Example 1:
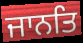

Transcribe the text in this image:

ਜਾਨਤਿ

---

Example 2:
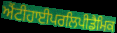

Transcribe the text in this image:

ਐਂਟੀਹਾਈਪਰਲਿਪੀਡੈਮਿਕ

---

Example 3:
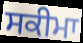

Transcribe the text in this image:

ਸਕੀਮਾ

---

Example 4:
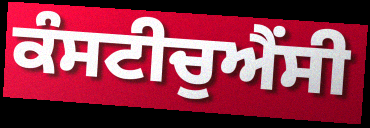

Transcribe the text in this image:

ਕੰਸਟੀਚੁਐਂਸੀ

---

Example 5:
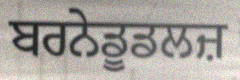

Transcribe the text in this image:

ਬਰਨੇਡੂਡਲਜ਼